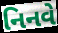
નિનવે